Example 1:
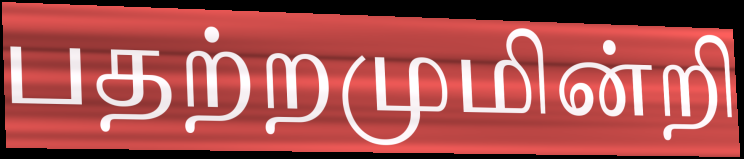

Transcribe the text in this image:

பதற்றமுமின்றி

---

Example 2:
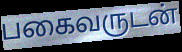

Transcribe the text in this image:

பகைவருடன்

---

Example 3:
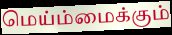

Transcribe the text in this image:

மெய்ம்மைக்கும்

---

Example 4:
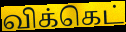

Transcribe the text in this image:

விக்கெட்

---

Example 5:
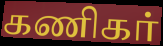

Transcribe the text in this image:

கணிகர்